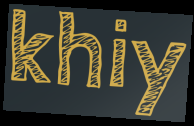
khiy